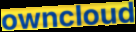
owncloud